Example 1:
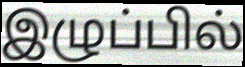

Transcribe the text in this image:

இழுப்பில்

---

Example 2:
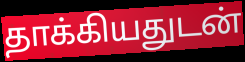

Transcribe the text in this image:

தாக்கியதுடன்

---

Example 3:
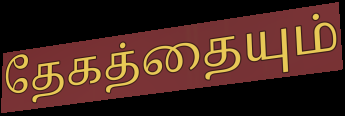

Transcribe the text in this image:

தேகத்தையும்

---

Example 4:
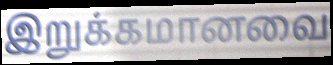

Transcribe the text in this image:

இறுக்கமானவை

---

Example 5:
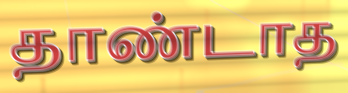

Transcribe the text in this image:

தாண்டாத